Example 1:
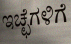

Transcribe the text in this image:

ಇಚ್ಛೆಗಳಿಗೆ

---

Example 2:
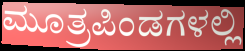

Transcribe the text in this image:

ಮೂತ್ರಪಿಂಡಗಳಲ್ಲಿ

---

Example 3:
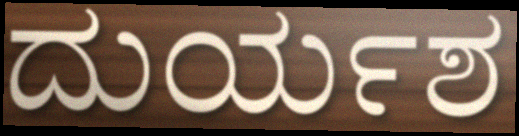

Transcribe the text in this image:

ದುರ್ಯಶ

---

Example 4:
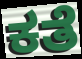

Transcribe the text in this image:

ಕತೆ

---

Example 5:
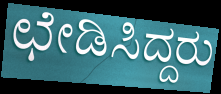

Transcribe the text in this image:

ಛೇಡಿಸಿದ್ದರು